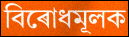
বিৰোধমূলক